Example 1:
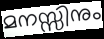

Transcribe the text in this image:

മനസ്സിനും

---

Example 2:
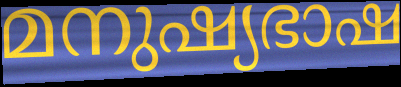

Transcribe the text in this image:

മനുഷ്യഭാഷ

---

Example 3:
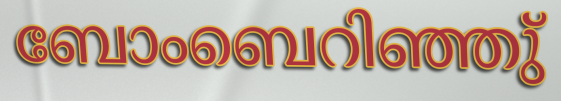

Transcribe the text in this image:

ബോംബെറിഞ്ഞു്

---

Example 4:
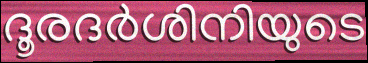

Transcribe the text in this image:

ദൂരദർശിനിയുടെ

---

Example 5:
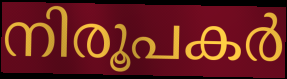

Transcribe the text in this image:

നിരൂപകർ